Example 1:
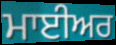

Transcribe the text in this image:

ਮਾਈਅਰ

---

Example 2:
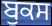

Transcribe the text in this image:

ਬੁਕਸ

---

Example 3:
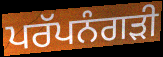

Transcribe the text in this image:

ਪਰੱਪਨੰਗੜੀ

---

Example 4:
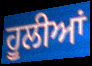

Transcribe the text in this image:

ਹੂਲੀਆਂ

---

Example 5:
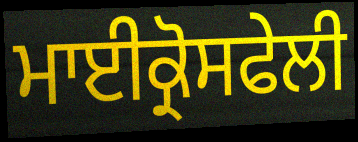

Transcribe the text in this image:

ਮਾਈਕ੍ਰੋਸਫੇਲੀ